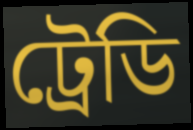
ট্রেডি